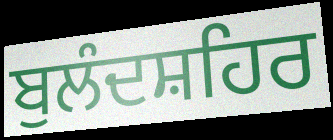
ਬੁਲੰਦਸ਼ਹਿਰ